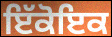
ਇੱਕੋਇਕ